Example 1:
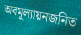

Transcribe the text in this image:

অবমূল্যায়নজনিত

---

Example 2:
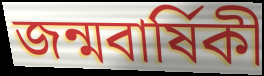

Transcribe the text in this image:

জন্মবার্ষিকী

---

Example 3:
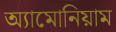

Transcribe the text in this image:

অ্যামোনিয়াম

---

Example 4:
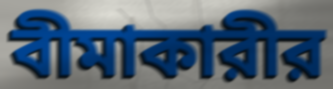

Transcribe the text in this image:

বীমাকারীর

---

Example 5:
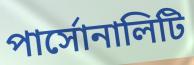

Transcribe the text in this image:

পার্সোনালিটি